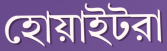
হোয়াইটরা